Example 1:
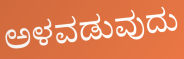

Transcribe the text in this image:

ಅಳವಡುವುದು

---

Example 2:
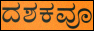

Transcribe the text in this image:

ದಶಕವೂ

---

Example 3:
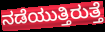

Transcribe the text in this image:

ನಡೆಯುತ್ತಿರುತ್ತೆ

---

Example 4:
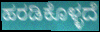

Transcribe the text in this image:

ಹರಡಿಕೊಳ್ಳದೆ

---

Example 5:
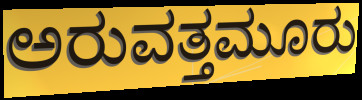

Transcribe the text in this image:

ಅರುವತ್ತಮೂರು